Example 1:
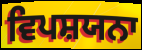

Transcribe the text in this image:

ਵਿਪਸ਼ਯਨਾ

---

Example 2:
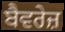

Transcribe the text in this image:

ਬੈਵਰੇਜ਼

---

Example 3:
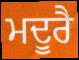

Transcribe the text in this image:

ਮਦੂਰੈ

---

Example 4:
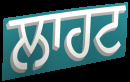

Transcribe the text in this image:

ਲਾਹਟ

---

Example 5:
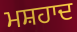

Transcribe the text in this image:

ਮਸ਼ਹਾਦ